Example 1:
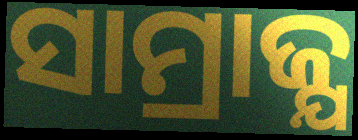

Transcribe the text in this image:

ସାମ୍ରାଜ୍ଯ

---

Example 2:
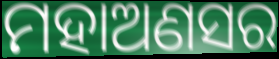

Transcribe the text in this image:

ମହାଅଣସର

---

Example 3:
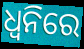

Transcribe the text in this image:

ଧ୍ଵନିରେ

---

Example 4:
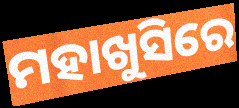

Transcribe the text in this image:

ମହାଖୁସିରେ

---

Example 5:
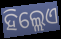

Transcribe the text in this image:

ହିଲ୍ଲେଏ